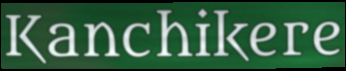
Kanchikere